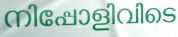
നിപ്പോളിവിടെ